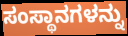
ಸಂಸ್ಥಾನಗಳನ್ನು